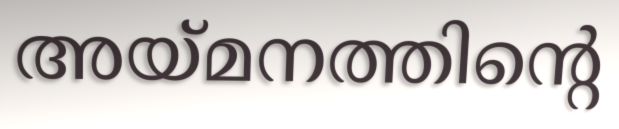
അയ്മനത്തിന്റെ